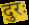
दुरः